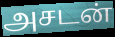
அசடன்